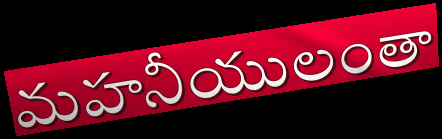
మహనీయులంతా